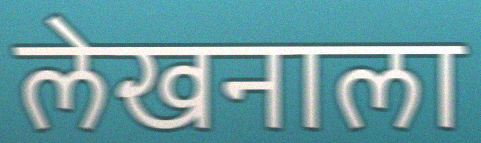
लेखनाला